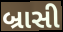
બ્રાસી